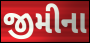
જીમીના